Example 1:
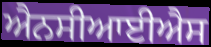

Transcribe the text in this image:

ਐਨਸੀਆਈਐਸ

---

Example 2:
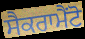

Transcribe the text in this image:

ਸੈਕਰਾਮੈਂਟੋ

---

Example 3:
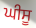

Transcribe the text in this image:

ਘੀਸੂ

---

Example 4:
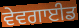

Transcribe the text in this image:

ਵੇਵਗਾਈਡ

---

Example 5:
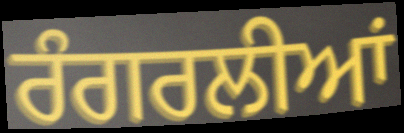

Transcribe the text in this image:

ਰੰਗਰਲੀਆਂ